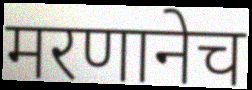
मरणानेच